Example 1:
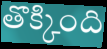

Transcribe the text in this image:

తొక్కింది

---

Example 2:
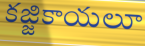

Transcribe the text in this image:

కజ్జికాయలూ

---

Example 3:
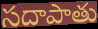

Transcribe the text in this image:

సదాపాతు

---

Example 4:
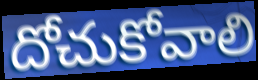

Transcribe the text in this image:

దోచుకోవాలి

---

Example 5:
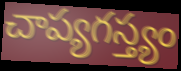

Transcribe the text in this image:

చాప్యగస్త్యం